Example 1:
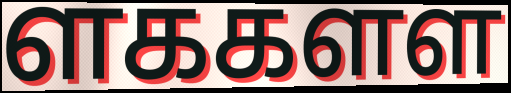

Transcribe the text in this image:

ளககளள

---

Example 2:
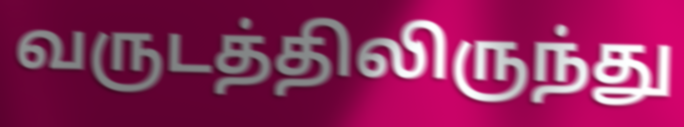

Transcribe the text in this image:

வருடத்திலிருந்து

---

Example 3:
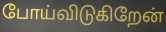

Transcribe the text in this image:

போய்விடுகிறேன்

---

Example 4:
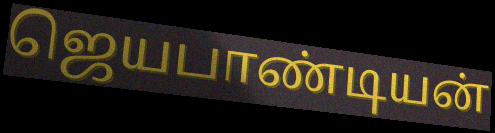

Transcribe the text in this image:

ஜெயபாண்டியன்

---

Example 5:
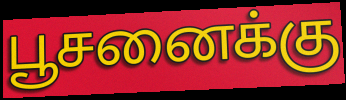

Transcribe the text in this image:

பூசனைக்கு